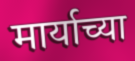
मार्याच्या